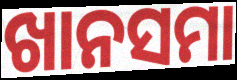
ଖାନସମା